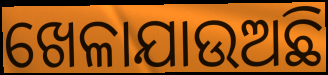
ଖେଳାଯାଉଅଛି